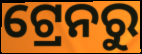
ଟ୍ରେନରୁ